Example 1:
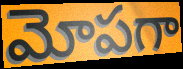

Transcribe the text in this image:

మోపగా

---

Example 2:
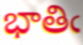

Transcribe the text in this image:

భాతిఁ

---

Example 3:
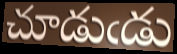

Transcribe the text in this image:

చూడుఁడు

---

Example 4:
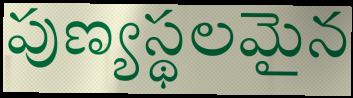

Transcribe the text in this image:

పుణ్యస్థలమైన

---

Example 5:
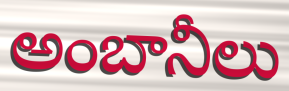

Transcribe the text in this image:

అంబానీలు